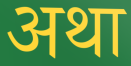
अथा